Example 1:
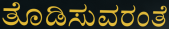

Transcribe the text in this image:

ತೊಡಿಸುವರಂತೆ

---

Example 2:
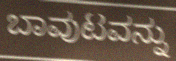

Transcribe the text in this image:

ಬಾವುಟವನ್ನು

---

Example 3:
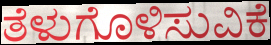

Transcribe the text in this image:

ತೆಳುಗೊಳಿಸುವಿಕೆ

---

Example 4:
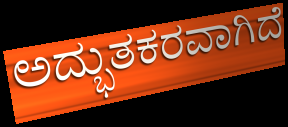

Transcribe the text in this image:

ಅದ್ಭುತಕರವಾಗಿದೆ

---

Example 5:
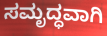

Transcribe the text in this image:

ಸಮೃದ್ಧವಾಗಿ